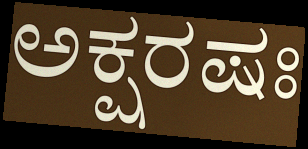
ಅಕ್ಷರಷಃ